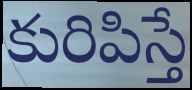
కురిపిస్తే